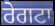
ਰੇਗਟਾ